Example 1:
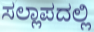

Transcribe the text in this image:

ಸಲ್ಲಾಪದಲ್ಲಿ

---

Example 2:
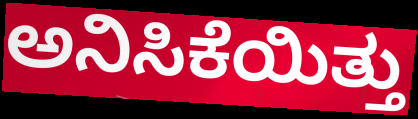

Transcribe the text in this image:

ಅನಿಸಿಕೆಯಿತ್ತು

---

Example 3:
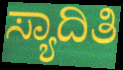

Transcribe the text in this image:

ಸ್ಯಾದಿತಿ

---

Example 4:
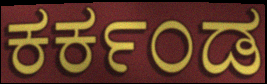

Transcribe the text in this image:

ಕರ್ಕಂಡ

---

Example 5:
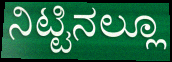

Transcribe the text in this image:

ನಿಟ್ಟಿನಲ್ಲೂ